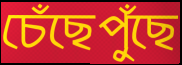
চেঁছেপুঁছে